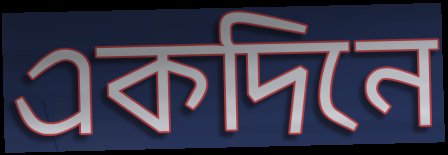
একদিনে